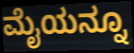
ಮೈಯನ್ನೂ